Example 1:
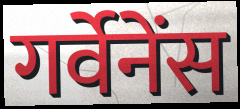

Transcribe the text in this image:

गर्वेनेंस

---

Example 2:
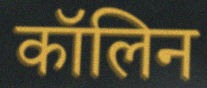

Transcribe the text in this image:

कॉलिन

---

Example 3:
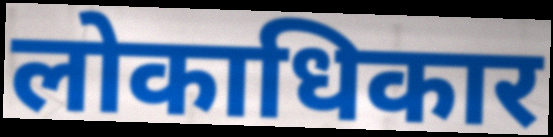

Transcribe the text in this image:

लोकाधिकार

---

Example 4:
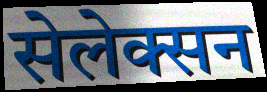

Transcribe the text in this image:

सेलेक्सन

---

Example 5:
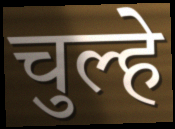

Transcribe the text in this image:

चुल्हे